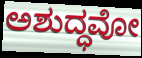
ಅಶುದ್ಧವೋ